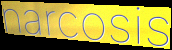
narcosis